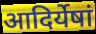
आदिर्येषां